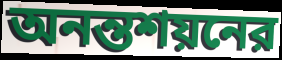
অনন্তশয়নের